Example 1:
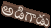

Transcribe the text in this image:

అడిగాడు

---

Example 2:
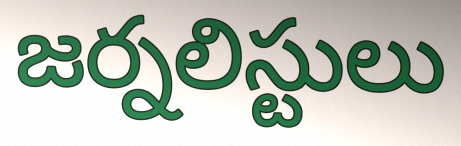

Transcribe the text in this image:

జర్నలిస్టులు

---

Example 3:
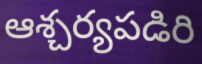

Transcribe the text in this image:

ఆశ్చర్యపడిరి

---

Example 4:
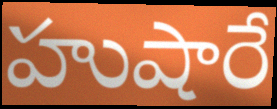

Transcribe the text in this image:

హుషారే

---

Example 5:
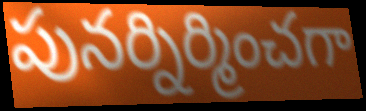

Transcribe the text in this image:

పునర్నిర్మించగా